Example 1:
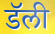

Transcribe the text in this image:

डॅली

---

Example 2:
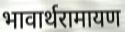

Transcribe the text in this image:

भावार्थरामायण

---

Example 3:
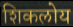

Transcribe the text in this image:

शिकलोय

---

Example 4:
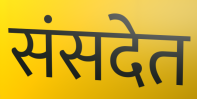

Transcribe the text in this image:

संसदेत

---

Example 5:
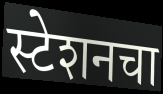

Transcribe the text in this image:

स्टेशनचा